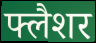
फ्लैशर